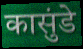
कासुंडे